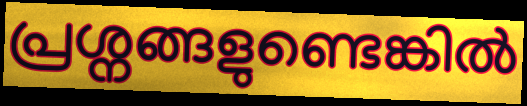
പ്രശ്നങ്ങളുണ്ടെങ്കിൽ